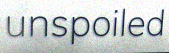
unspoiled